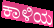
ಕಾಳಿಯ